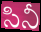
సినీ